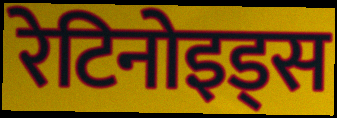
रेटिनोइड्स